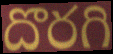
దొరగి